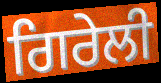
ਗਿਰੇਲੀ